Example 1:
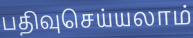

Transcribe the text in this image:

பதிவுசெய்யலாம்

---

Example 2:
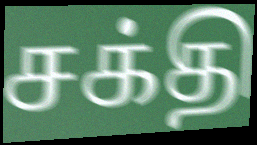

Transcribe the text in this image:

சக்தி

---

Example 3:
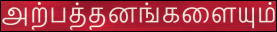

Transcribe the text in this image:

அற்பத்தனங்களையும்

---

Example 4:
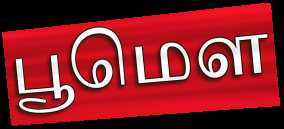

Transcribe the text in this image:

பூமௌ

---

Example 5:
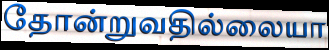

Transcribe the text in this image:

தோன்றுவதில்லையா